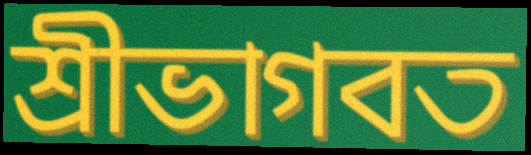
শ্রীভাগবত